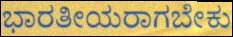
ಭಾರತೀಯರಾಗಬೇಕು